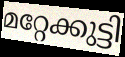
മറ്റേക്കുട്ടി